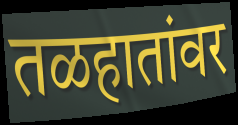
तळहातांवर